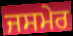
ਜਸਮੇਰ